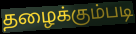
தழைக்கும்படி